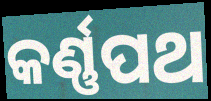
କର୍ଣ୍ଣପଥ